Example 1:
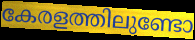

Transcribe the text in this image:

കേരളത്തിലുണ്ടോ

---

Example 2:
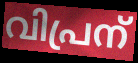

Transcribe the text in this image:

വിപ്രന്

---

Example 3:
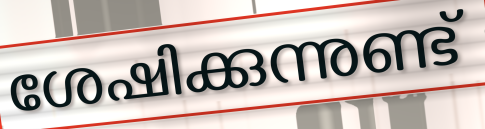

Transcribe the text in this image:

ശേഷിക്കുന്നുണ്ട്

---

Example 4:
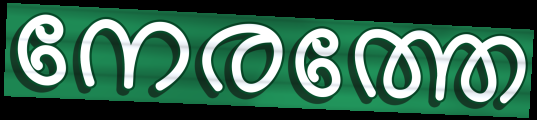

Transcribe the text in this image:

നേരത്തേ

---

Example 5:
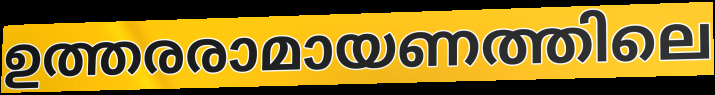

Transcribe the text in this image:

ഉത്തരരാമായണത്തിലെ